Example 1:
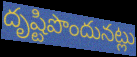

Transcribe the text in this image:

దృష్టిపొందునట్లు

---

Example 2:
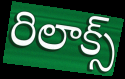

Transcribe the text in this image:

రిలాక్స్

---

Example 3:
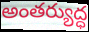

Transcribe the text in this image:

అంతర్యుద్ధ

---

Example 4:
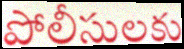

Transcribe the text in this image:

పోలీసులకు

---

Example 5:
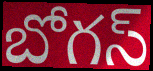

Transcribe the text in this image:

బోగస్